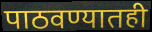
पाठवण्यातही